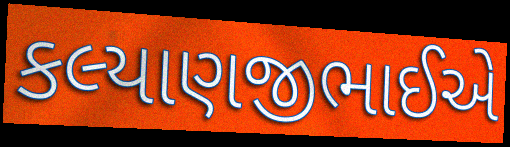
કલ્યાણજીભાઈએ